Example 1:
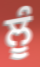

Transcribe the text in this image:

ਲੂੰ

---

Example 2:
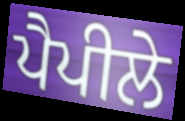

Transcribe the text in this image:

ਪੈਪੀਲੇ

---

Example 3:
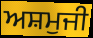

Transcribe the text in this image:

ਅਸ਼ਮੁਜੀ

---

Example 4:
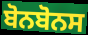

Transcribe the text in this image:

ਬੋਨਬੋਨਸ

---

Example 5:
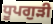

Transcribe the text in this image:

ਧੂਪਗੁੜੀ